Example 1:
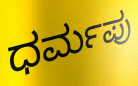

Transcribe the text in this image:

ಧರ್ಮಪು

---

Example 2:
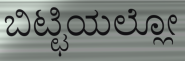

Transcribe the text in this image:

ಬಿಟ್ಟಿಯಲ್ಲೋ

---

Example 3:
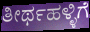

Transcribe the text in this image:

ತೀರ್ಥಹಳ್ಳಿಗೆ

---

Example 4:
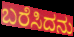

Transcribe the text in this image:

ಬರೆಸಿದನು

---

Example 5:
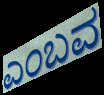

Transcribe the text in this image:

ಎಂಬವ